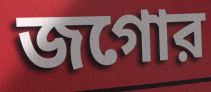
জগোর